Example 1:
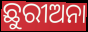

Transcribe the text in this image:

ଛୁରୀଅନା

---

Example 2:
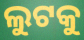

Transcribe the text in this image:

ଲୁଟକୁ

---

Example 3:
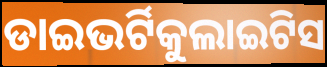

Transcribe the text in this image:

ଡାଇଭର୍ଟିକୁଲାଇଟିସ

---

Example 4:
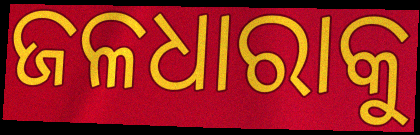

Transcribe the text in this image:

ଜଳଧାରାକୁ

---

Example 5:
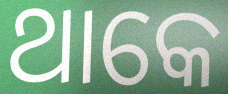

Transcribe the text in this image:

ଥାକେ